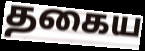
தகைய